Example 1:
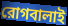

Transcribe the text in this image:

রোগবালাই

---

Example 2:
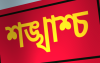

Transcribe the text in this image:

শঙ্খাশ্চ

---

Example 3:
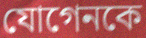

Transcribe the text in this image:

যোগেনকে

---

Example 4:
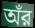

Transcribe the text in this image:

অঁর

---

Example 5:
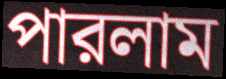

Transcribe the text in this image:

পারলাম